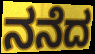
ನನೆದ